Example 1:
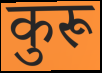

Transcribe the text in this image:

कुरू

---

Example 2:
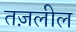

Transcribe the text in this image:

तज़लील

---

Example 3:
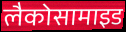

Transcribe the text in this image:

लैकोसामाइड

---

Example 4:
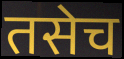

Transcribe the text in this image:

तसेच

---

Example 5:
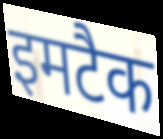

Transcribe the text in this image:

इमटैक